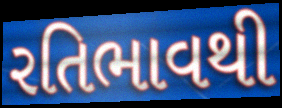
રતિભાવથી